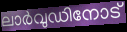
ലാർവുഡിനോട്